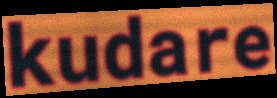
kudare